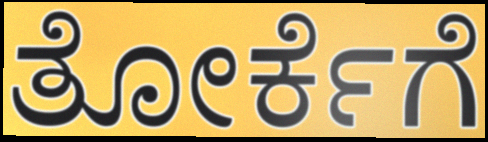
ತೋರ್ಕೆಗೆ